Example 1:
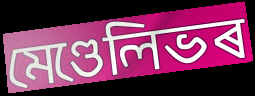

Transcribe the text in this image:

মেণ্ডেলিভৰ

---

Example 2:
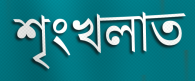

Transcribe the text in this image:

শৃংখলাত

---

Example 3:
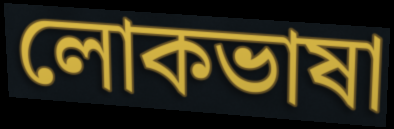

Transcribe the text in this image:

লোকভাষা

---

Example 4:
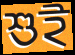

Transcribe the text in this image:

শুই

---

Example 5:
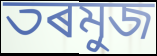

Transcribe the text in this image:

তৰমুজ